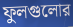
ফুলগুলোর